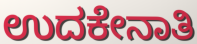
ಉದಕೇನಾತಿ